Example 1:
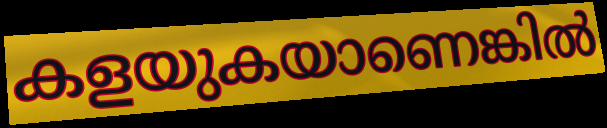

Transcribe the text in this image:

കളയുകയാണെങ്കിൽ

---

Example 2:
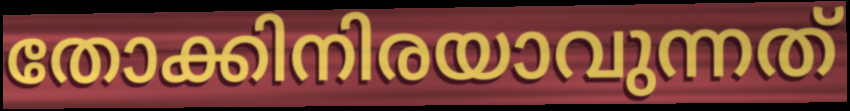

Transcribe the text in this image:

തോക്കിനിരയാവുന്നത്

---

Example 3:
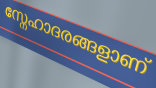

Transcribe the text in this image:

സ്നേഹാദരങ്ങളാണ്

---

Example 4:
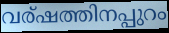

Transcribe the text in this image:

വര്ഷത്തിനപ്പുറം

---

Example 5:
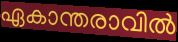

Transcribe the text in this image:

ഏകാന്തരാവിൽ